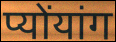
प्योंयांग